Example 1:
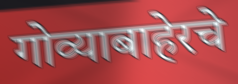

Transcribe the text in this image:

गोव्याबाहेरचे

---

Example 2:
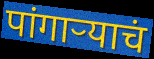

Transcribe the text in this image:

पांगाऱ्याचं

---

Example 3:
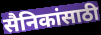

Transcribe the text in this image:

सैनिकांसाठी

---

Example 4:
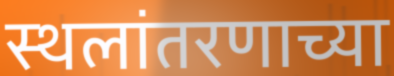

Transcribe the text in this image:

स्थलांतरणाच्या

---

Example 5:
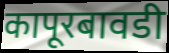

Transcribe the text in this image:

कापूरबावडी